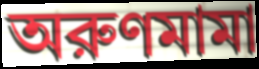
অরুণমামা